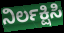
ನಿರ್ಲಕ್ಷಿಸಿ